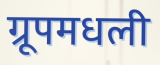
ग्रूपमधली